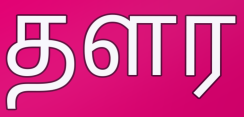
தளர